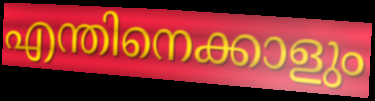
എന്തിനെക്കാളും